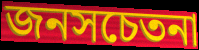
জনসচেতনা